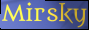
Mirsky